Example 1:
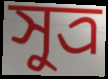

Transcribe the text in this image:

সুত্ৰ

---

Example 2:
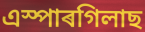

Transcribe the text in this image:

এস্পাৰগিলাছ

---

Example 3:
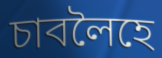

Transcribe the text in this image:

চাবলৈহে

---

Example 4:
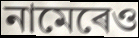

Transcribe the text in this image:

নামেৰেও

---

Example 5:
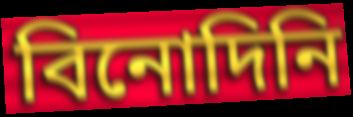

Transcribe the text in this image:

বিনোদিনি